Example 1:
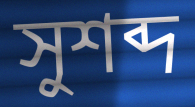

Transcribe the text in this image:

সুশব্দ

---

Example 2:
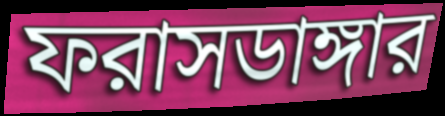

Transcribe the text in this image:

ফরাসডাঙ্গার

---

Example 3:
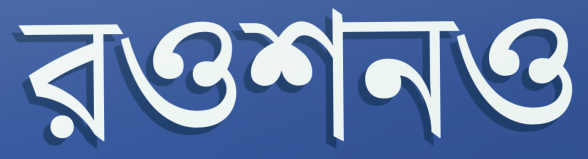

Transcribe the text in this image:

রওশনও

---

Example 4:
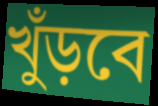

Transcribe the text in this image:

খুঁড়বে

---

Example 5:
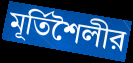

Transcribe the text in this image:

মূর্তিশৈলীর